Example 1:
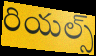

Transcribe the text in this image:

రియల్స్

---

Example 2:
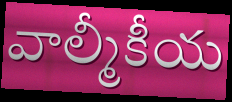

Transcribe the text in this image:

వాల్మీకీయ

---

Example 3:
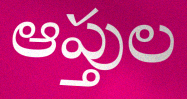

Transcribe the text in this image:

ఆప్తుల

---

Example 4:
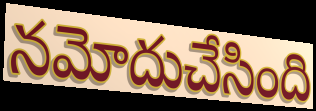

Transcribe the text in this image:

నమోదుచేసింది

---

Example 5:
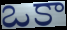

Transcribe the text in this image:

ఒకా